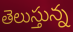
తెలుస్తున్న